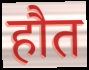
हौत